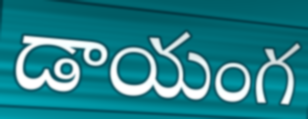
డాయంగ